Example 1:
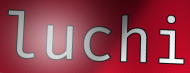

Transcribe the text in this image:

luchi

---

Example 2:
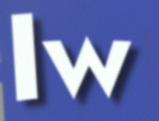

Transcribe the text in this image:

Iw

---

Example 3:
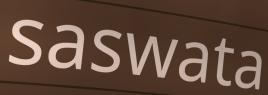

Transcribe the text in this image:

saswata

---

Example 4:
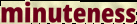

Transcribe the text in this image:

minuteness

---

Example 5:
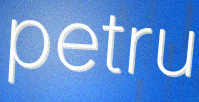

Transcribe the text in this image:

petru